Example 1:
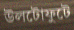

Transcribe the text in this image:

উলটোফুটে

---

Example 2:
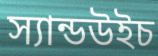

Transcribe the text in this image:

স্যান্ডউইচ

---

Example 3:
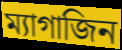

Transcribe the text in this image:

ম্যাগাজিন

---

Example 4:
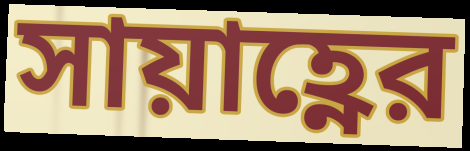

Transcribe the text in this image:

সায়াহ্ণের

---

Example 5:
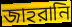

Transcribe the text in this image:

জাহরানি